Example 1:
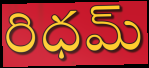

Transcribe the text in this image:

రిధమ్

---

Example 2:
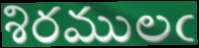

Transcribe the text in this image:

శిరములఁ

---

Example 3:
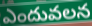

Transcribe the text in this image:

ఎందువలన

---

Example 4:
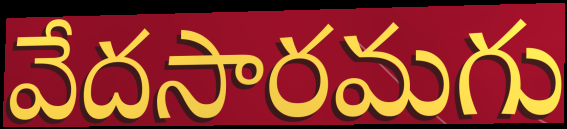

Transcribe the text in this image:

వేదసారమగు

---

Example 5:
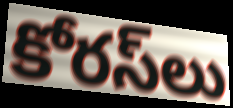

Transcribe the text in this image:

కోరస్‌లు